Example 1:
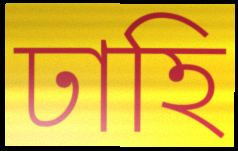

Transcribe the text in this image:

ঢাহি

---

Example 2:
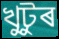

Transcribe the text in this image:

খুটুৰ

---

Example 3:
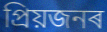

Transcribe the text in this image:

প্ৰিয়জনৰ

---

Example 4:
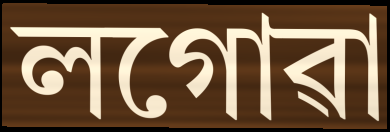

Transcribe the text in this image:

লগোৱা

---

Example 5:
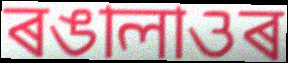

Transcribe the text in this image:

ৰঙালাওৰ